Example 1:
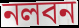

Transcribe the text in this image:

নলবন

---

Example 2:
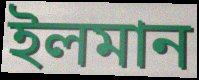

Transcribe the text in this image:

ইলমান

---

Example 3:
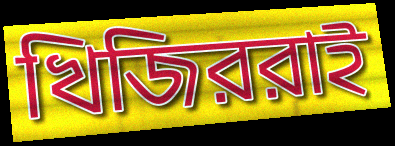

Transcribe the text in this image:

খিজিররাই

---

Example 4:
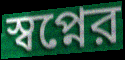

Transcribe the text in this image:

স্বপ্নের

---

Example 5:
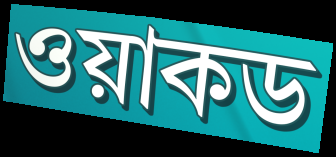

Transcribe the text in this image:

ওয়াকড